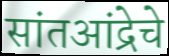
सांतआंद्रेचे